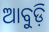
ଆବୁଡ଼ି